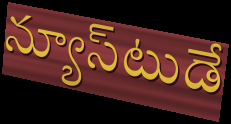
న్యూస్‌టుడే